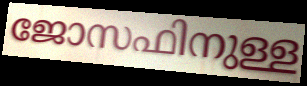
ജോസഫിനുള്ള